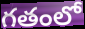
గతంలో